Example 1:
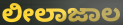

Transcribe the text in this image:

ಲೀಲಾಜಾಲ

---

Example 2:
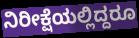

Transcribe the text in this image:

ನಿರೀಕ್ಷೆಯಲ್ಲಿದ್ದರೂ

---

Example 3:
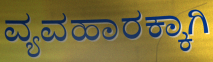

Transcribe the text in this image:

ವ್ಯವಹಾರಕ್ಕಾಗಿ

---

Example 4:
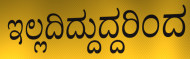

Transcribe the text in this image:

ಇಲ್ಲದಿದ್ದುದ್ದರಿಂದ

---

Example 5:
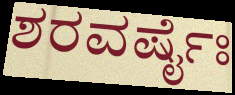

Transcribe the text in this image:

ಶರವರ್ಷೈಃ